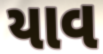
યાવ